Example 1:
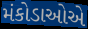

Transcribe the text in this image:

મંકોડાઓએ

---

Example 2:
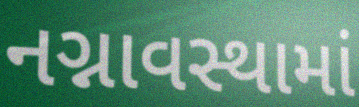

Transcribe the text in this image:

નગ્નાવસ્થામાં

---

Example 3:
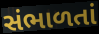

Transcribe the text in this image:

સંભાળતાં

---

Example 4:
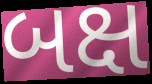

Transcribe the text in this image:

બક્ષ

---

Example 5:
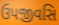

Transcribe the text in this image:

ઉપજીવસિ